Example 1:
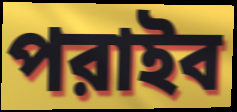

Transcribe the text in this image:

পরাইব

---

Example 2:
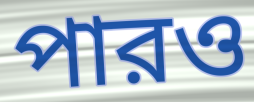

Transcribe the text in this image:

পারও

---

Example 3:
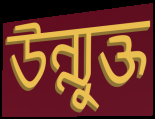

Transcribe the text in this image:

উন্মুক্ত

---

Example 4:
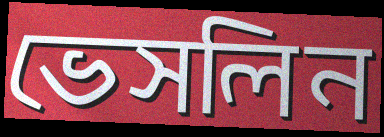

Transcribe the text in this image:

ভেসলিন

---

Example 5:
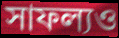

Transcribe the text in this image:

সাফল্যও